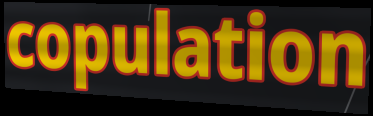
copulation